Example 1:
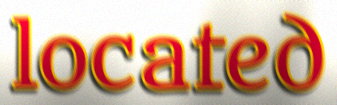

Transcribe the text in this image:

located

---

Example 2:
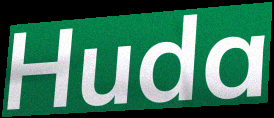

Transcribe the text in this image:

Huda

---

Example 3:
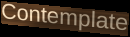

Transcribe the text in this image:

Contemplate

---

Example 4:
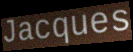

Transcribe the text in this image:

Jacques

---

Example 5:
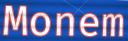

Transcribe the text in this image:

Monem